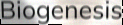
Biogenesis